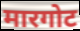
मारगोट